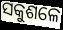
ସକୁଶଳେ